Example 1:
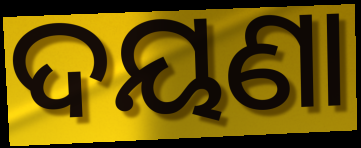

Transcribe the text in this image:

ଦୟଣା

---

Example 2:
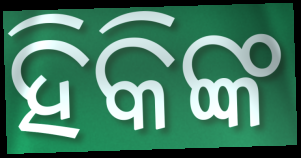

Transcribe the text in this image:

ହିକିଙ୍କ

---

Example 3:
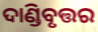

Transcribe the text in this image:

ଦାଣ୍ଡିବୃତ୍ତର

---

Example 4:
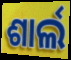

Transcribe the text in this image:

ଶାର୍ଲ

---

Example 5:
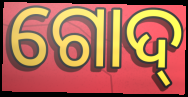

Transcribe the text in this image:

ଗୋଦ୍